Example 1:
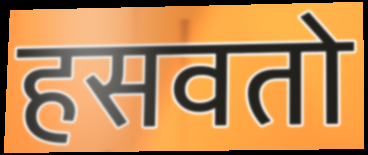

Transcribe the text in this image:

हसवतो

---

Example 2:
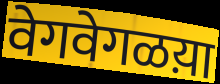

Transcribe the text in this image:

वेगवेगळय़ा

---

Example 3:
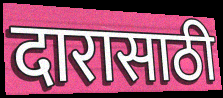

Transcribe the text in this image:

दारासाठी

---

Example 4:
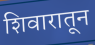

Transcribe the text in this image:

शिवारातून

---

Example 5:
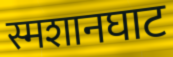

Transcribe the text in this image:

स्मशानघाट